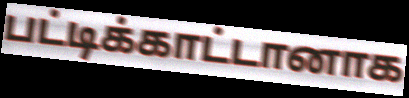
பட்டிக்காட்டானாக